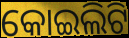
କୋଇଲିଟି